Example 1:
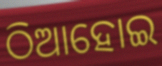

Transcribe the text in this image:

ଠିଆହୋଇ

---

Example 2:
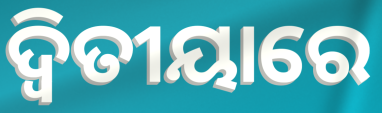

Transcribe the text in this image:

ଦ୍ୱିତୀୟାରେ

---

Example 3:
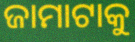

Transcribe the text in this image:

ଜାମାଟାକୁ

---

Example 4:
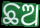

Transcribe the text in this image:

ଛଅ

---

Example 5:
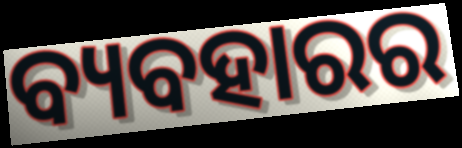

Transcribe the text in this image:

ବ୍ୟବହାରର